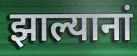
झाल्यानां